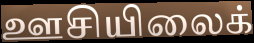
ஊசியிலைக்